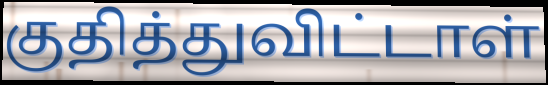
குதித்துவிட்டாள்